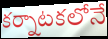
కర్నాటకలోనే